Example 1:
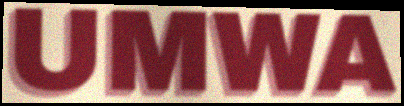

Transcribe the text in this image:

UMWA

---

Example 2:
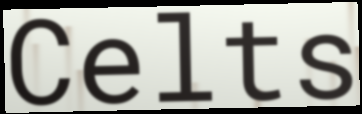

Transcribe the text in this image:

Celts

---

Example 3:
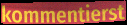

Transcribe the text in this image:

kommentierst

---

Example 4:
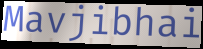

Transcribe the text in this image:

Mavjibhai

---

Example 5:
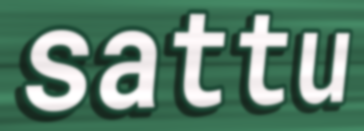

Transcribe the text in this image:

sattu